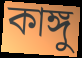
কাঙ্গু